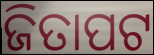
ଜିତାପଟ